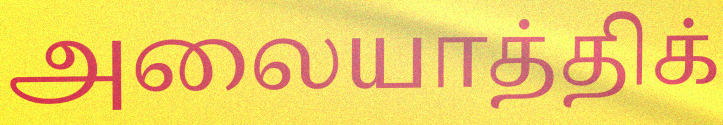
அலையாத்திக்